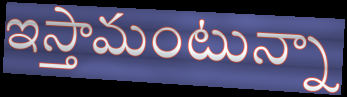
ఇస్తామంటున్నా